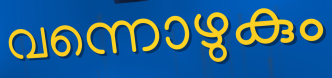
വന്നൊഴുകും